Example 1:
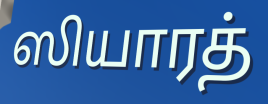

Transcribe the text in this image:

ஸியாரத்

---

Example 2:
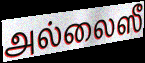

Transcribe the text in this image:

அல்லைஸீ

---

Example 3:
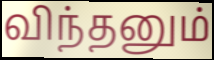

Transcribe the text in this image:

விந்தனும்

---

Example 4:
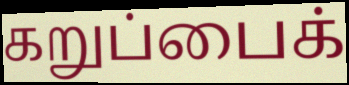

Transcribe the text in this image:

கறுப்பைக்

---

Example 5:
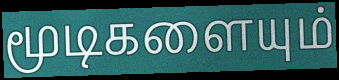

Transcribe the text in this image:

மூடிகளையும்